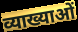
व्याख्याओं